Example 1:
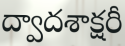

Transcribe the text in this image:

ద్వాదశాక్షరీ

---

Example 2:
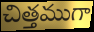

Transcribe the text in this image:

చిత్తముగా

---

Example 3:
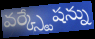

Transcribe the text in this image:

వర్క్స్టేషన్ను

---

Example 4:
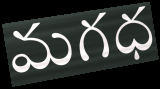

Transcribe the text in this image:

మగధ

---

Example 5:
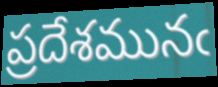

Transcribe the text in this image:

ప్రదేశమునఁ